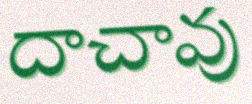
దాచావు